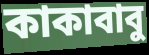
কাকাবাবু